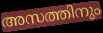
അസത്തിനും